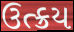
ઉત્ક્રય